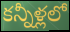
కన్నీళ్లలో